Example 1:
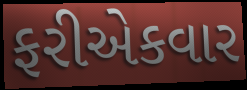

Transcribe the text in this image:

ફરીએકવાર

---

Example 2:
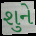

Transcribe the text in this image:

શુને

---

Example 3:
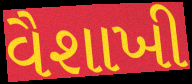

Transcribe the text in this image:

વૈશાખી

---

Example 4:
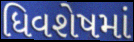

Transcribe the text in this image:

ધિવશેષમાં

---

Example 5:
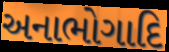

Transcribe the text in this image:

અનાભોગાદિ